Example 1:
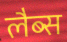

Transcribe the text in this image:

लैब्स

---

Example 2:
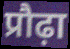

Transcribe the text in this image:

प्रौढ़ा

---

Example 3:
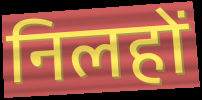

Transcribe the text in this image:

निलहों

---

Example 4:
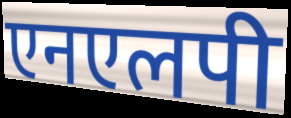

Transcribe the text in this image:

एनएलपी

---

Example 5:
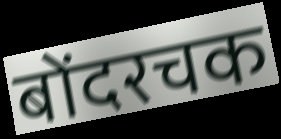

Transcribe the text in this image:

बोंदरचक